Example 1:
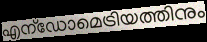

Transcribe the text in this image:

എന്ഡോമെട്രിയത്തിനും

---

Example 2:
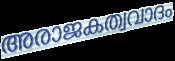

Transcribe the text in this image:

അരാജകത്വവാദം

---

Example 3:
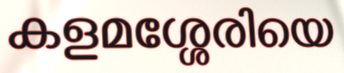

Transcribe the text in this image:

കളമശ്ശേരിയെ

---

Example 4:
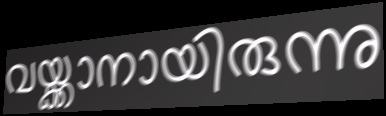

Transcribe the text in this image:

വയ്ക്കാനായിരുന്നു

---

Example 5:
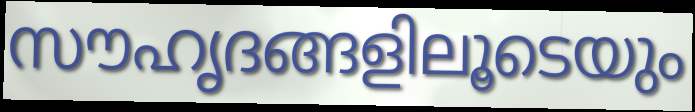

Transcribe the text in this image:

സൗഹൃദങ്ങളിലൂടെയും